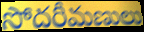
సోదరీమణులు